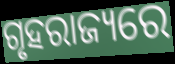
ଗୃହରାଜ୍ୟରେ